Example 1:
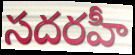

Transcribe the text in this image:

సదరహీ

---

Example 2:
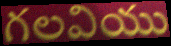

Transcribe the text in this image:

గలవియు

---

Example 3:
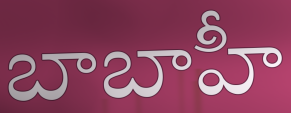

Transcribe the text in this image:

బాబాహీ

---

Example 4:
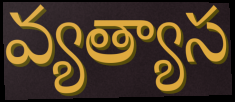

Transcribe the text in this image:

వ్యత్యాస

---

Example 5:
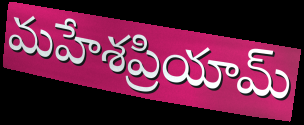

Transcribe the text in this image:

మహేశప్రియామ్